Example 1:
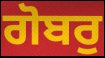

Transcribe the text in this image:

ਗੋਬਰੁ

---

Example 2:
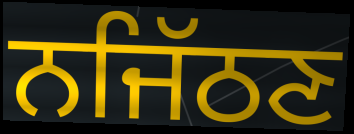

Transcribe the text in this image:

ਨਜਿੱਠਣ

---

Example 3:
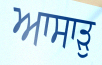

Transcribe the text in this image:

ਆਸਾੜੁ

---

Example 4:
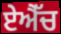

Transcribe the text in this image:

ਏਐੱਚ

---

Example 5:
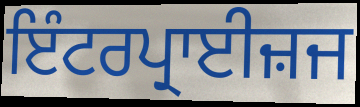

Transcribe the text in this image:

ਇੰਟਰਪ੍ਰਾਈਜ਼ਜ